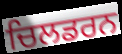
ਚਿਲਡਰਨ